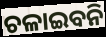
ଚଳାଇବନି